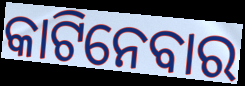
କାଟିନେବାର